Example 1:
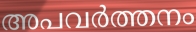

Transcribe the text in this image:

അപവർത്തനം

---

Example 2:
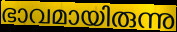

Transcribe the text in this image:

ഭാവമായിരുന്നു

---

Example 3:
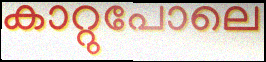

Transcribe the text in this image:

കാറ്റുപോലെ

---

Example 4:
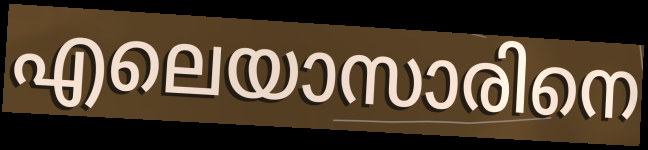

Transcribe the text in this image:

എലെയാസാരിനെ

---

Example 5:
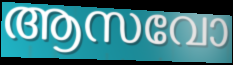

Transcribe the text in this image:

ആസവോ